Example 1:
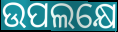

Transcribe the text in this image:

ଉପଲକ୍ଷେ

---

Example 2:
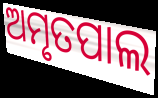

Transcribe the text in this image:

ଅମୃତପାଲ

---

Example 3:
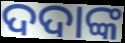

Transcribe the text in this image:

ଦଦାଙ୍କ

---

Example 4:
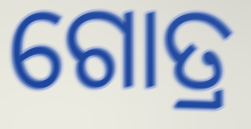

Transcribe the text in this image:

ଗୋତ୍ର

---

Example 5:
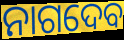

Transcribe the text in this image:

ନାଗଦେବ